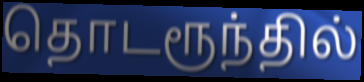
தொடரூந்தில்